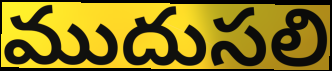
ముదుసలి